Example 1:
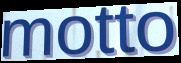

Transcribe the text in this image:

motto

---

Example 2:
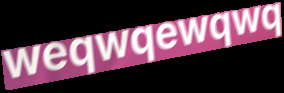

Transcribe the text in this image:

weqwqewqwq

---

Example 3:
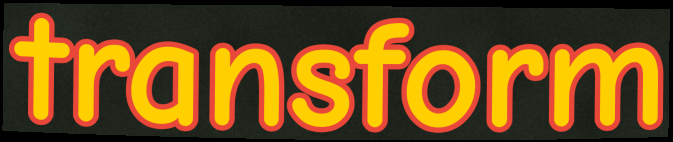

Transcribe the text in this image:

transform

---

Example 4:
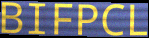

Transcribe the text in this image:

BIFPCL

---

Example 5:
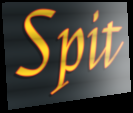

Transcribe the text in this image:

Spit